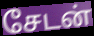
சேடன்